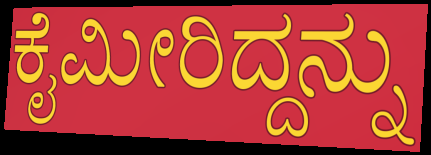
ಕೈಮೀರಿದ್ದನ್ನು